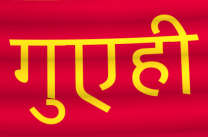
गुएही